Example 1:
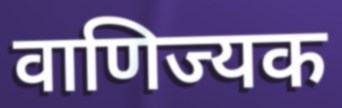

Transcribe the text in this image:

वाणिज्यक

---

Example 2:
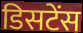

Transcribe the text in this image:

डिसटेंस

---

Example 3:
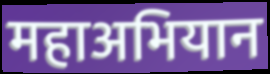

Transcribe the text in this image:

महाअभियान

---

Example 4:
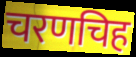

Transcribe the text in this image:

चरणचिह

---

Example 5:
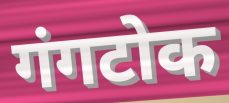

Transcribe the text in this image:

गंगटोक